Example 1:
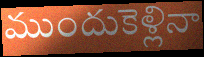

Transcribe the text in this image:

ముందుకెళ్లినా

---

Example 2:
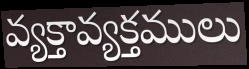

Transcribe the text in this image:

వ్యక్తావ్యక్తములు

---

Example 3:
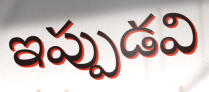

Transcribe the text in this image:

ఇప్పుడవి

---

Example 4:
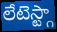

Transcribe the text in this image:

లేటెస్ట్గా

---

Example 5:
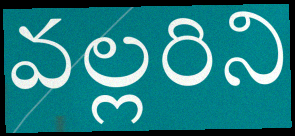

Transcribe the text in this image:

వల్లరిని